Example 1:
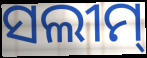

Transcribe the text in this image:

ସଲୀମ୍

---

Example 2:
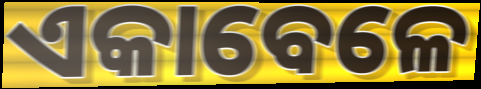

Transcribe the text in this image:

ଏକାବେଳେ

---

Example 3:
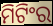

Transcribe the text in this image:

ମିଟିଂର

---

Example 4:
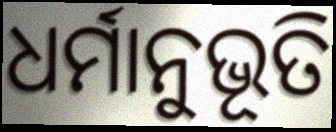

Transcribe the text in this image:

ଧର୍ମାନୁଭୂତି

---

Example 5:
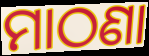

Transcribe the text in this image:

ମାଠଣା